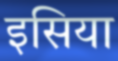
इसिया